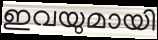
ഇവയുമായി